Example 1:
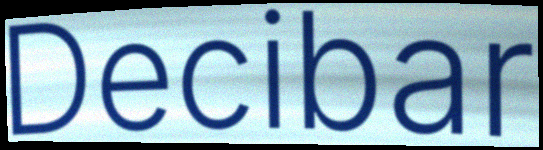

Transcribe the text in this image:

Decibar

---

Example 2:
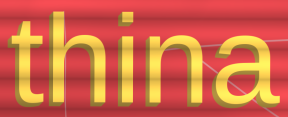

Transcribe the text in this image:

thina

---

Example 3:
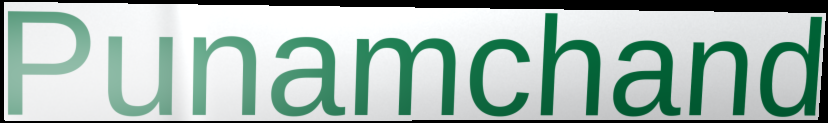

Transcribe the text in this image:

Punamchand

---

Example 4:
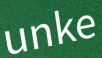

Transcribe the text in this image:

unke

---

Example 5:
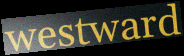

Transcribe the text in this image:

westward